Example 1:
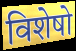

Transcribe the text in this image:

विशेषो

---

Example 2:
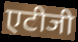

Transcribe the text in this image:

एटीजी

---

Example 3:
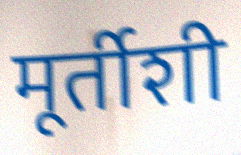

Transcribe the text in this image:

मूर्तीशी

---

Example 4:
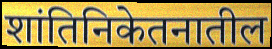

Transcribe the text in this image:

शांतिनिकेतनातील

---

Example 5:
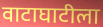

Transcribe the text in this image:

वाटाघाटीला